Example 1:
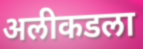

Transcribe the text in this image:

अलीकडला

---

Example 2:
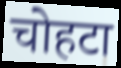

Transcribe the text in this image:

चोहटा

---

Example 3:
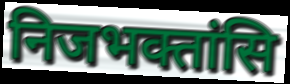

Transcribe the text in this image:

निजभक्तांसि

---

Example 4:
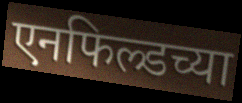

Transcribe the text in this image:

एनफिल्डच्या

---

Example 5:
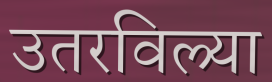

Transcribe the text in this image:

उतरविल्या